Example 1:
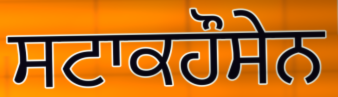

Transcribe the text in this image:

ਸਟਾਕਹੌਸੇਨ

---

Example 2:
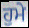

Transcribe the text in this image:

ਹੁਮੇ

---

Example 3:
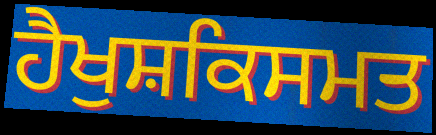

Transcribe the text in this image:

ਹੈਖੁਸ਼ਕਿਸਮਤ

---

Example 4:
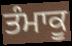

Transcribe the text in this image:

ਤੰਮਾਕੂ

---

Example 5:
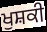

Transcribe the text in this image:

ਖੁਸ਼ਕੀ